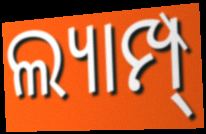
ଲ୍ୟାମ୍ପ୍